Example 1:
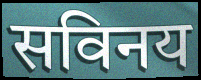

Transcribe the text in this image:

सविनय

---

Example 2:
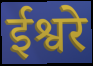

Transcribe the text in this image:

ईश्वरे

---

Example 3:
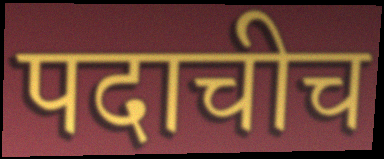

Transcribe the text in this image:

पदाचीच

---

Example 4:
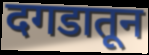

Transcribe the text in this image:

दगडातून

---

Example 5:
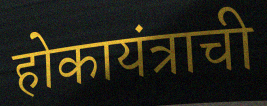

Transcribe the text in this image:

होकायंत्राची